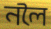
নলৈ